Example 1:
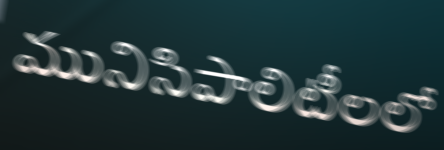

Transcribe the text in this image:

మునిసిపాలిటీలలో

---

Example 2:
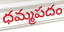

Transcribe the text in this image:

ధమ్మపదం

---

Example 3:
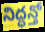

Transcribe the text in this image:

నిద్ధన్తో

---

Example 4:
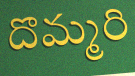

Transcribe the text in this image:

దొమ్మరి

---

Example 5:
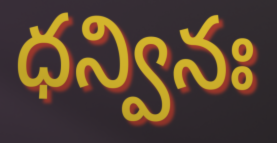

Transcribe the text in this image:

ధన్వినః